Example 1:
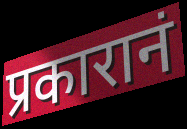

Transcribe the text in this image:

प्रकारानं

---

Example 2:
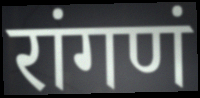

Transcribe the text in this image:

रांगणं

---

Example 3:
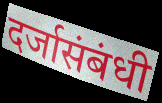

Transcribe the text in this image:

दर्जासंबंधी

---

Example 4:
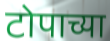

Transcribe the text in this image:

टोपाच्या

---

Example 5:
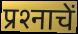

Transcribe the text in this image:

प्रश्नाचें